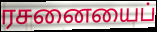
ரசனையைப்